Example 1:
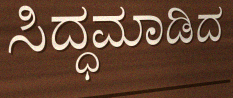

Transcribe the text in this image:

ಸಿದ್ಧಮಾಡಿದ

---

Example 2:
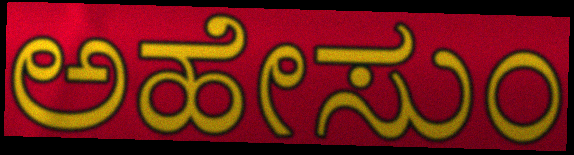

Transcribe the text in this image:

ಅಹೇಸುಂ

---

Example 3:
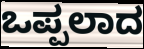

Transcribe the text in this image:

ಒಪ್ಪಲಾದ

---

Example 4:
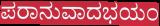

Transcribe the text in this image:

ಪರಾನುವಾದಭಯಂ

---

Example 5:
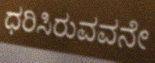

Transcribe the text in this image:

ಧರಿಸಿರುವವನೇ